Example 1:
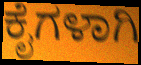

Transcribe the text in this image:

ಕೈಗಳಾಗಿ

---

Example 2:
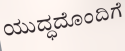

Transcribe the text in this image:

ಯುದ್ಧದೊಂದಿಗೆ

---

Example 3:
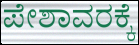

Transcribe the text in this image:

ಪೇಶಾವರಕ್ಕೆ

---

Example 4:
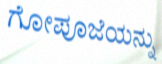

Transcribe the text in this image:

ಗೋಪೂಜೆಯನ್ನು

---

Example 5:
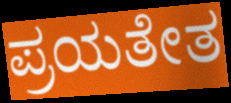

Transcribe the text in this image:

ಪ್ರಯತೇತ